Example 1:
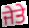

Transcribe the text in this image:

ਜੇਤੇ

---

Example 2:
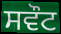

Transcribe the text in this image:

ਸਵੌਟ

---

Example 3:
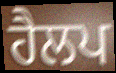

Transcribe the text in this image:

ਹੈਲਪ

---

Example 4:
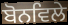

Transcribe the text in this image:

ਬੋਨਵਿਲੇ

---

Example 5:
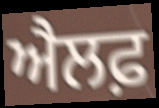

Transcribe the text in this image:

ਐਲਫ਼